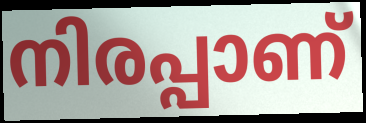
നിരപ്പാണ്